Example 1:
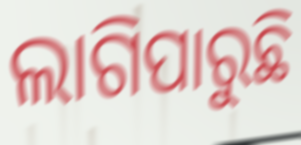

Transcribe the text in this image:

ଲାଗିପାରୁଛି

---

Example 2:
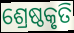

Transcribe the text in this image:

ଶ୍ରେଷ୍ଠକୃତି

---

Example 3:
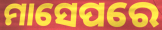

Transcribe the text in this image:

ମାସେପରେ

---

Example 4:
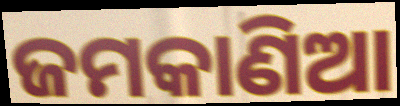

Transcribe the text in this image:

ଜମକାଣିଆ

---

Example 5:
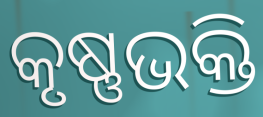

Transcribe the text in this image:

କୃଷ୍ଣଭକ୍ତି